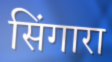
सिंगारा